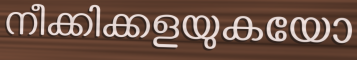
നീക്കിക്കളയുകയോ